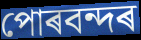
পোৰবন্দৰ